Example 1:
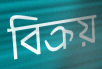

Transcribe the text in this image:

বিক্ৰয়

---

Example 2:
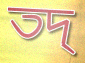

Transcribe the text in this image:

তদ্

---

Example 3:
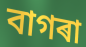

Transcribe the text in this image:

বাগৰা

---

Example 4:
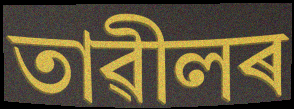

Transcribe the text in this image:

তাৱীলৰ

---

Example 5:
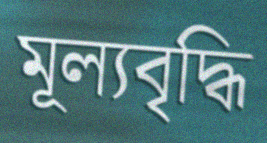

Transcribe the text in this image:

মূল্যবৃদ্ধি